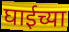
घाईच्या